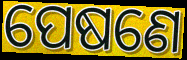
ପେଷଣେ